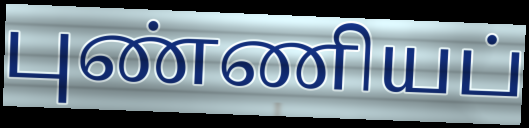
புண்ணியப்